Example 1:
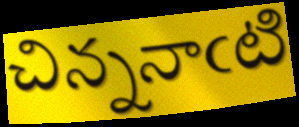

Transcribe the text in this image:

చిన్ననాఁటి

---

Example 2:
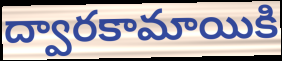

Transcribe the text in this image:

ద్వారకామాయికి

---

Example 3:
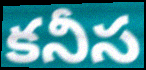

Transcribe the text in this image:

కనీస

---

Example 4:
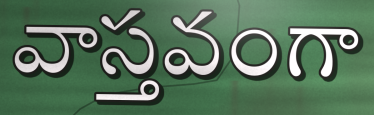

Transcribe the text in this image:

వాస్తవంగా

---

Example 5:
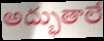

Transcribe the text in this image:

అద్భుతాలే